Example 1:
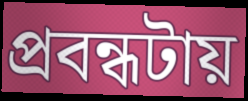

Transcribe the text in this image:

প্রবন্ধটায়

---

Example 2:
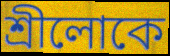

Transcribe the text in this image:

শ্রীলোকে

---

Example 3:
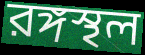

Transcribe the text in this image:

রঙ্গস্থল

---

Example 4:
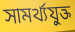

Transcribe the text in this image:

সামর্থ্যযুক্ত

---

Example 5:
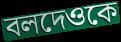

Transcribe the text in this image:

বলদেওকে